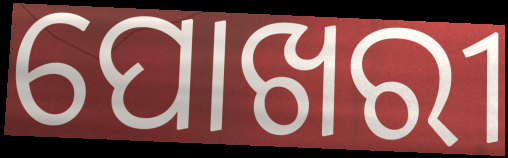
ପୋଖରୀ